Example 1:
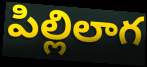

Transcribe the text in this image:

పిల్లిలాగ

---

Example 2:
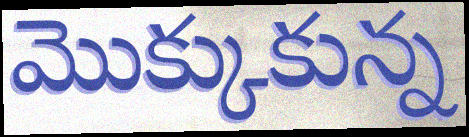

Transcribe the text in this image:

మొక్కుకున్న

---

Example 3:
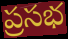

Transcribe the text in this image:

ప్రసభ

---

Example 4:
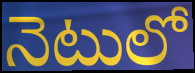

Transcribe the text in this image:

నెటులో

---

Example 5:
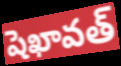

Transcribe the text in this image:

షెఖావత్